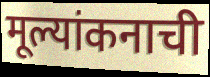
मूल्यांकनाची